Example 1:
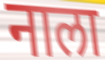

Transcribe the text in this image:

नाला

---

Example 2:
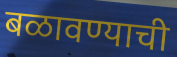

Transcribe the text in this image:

बळावण्याची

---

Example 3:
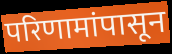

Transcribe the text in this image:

परिणामांपासून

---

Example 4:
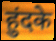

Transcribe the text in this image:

हुंदके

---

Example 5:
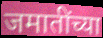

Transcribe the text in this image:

जमातींच्या